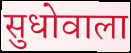
सुधोवाला